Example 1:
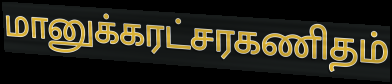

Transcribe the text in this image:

மானுக்கரட்சரகணிதம்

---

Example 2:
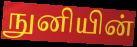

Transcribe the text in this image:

நுனியின்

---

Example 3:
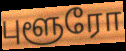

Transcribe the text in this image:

புளூரோ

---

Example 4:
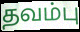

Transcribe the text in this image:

தவம்பு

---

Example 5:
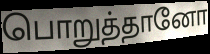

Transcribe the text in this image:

பொறுத்தானோ